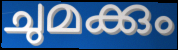
ചുമക്കും